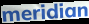
meridian